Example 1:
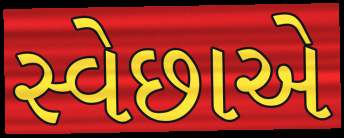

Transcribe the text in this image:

સ્વેછાએ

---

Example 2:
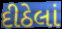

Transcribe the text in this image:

દીઠેલાં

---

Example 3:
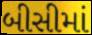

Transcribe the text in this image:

બીસીમાં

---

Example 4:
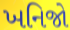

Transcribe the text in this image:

ખનિજો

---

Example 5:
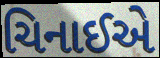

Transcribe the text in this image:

ચિનાઈએ